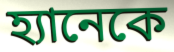
হ্যানেকে